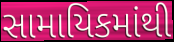
સામાયિકમાંથી